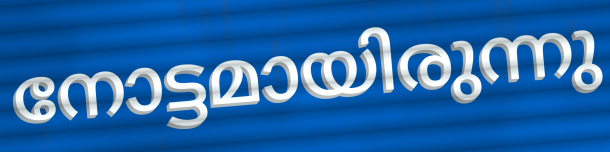
നോട്ടമായിരുന്നു